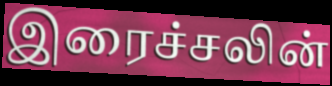
இரைச்சலின்